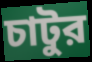
চাটুর